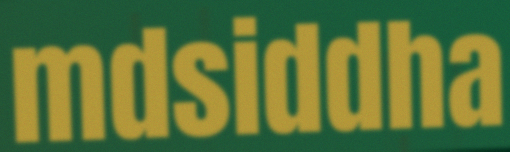
mdsiddha